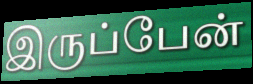
இருப்பேன்